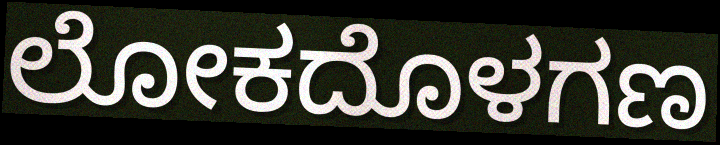
ಲೋಕದೊಳಗಣ